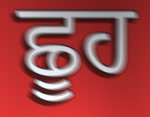
ਛੂਹ